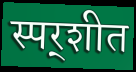
स्पर्शीत